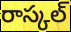
రాస్కల్